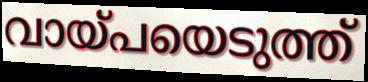
വായ്പയെടുത്ത്